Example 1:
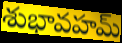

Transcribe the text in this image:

శుభావహమ్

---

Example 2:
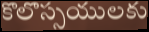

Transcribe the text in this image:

కొలొస్సయులకు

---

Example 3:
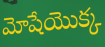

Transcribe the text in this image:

మోషేయొక్క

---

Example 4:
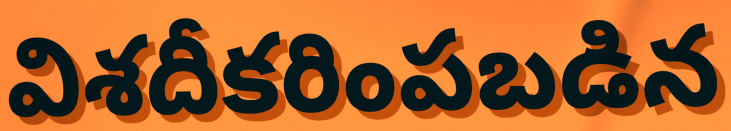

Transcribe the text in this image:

విశదీకరింపబడిన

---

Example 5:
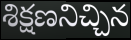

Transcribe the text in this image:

శిక్షణనిచ్చిన